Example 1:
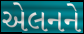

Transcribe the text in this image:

એલનને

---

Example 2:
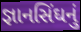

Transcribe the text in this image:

જ્ઞાનસિંઘનું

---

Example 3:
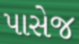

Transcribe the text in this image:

પાસેજ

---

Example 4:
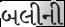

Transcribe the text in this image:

બલીની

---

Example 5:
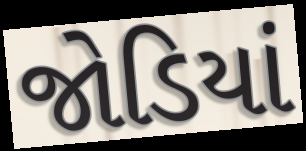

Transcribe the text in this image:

જોડિયાં